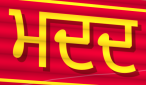
ਮਦਦ